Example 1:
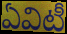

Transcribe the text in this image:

ఏవిటీ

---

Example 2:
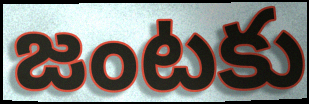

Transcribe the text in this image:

జంటకు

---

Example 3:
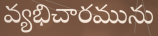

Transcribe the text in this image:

వ్యభిచారమును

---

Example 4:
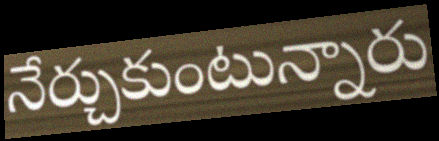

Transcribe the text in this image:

నేర్చుకుంటున్నారు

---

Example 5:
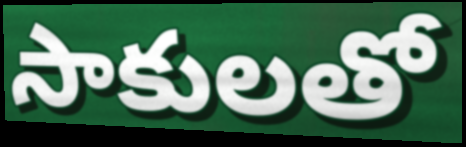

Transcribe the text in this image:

సాకులతో